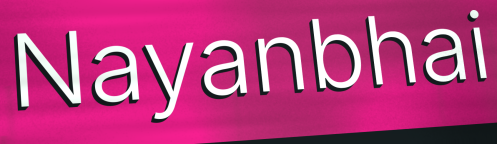
Nayanbhai